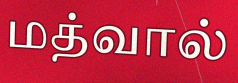
மத்வால்